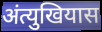
अंत्युखियास